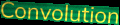
Convolution